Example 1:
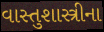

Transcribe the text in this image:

વાસ્તુશાસ્ત્રીના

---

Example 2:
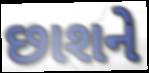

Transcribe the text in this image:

છાશને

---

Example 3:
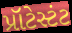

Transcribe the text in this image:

પ્રૉટેસ્ટંટ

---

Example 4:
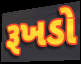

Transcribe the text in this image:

રૂખડો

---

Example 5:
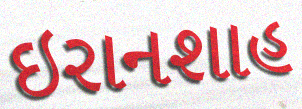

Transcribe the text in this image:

ઇરાનશાહ